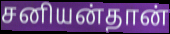
சனியன்தான்